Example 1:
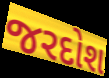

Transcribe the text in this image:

જરદોશ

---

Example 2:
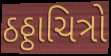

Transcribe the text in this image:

ઠઠ્ઠાચિત્રો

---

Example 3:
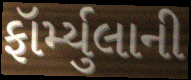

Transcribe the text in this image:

ફૉર્મ્યુલાની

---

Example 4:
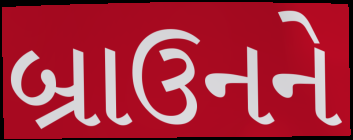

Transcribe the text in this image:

બ્રાઉનને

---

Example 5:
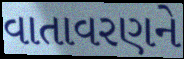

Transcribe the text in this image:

વાતાવરણને